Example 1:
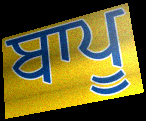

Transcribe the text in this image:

ਬਾਪੂ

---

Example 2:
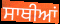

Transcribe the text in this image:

ਸਾਥੀਆਂ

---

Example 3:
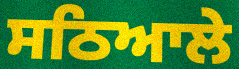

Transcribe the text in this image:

ਸਠਿਆਲੇ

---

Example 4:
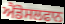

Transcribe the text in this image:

ਐਂਡੋਸਲਫਾਨ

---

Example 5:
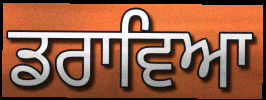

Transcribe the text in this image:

ਡਰਾਵਿਆ